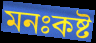
মনঃকষ্ট